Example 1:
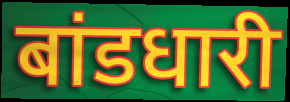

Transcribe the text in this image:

बांडधारी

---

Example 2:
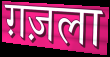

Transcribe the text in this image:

ग़ज़ला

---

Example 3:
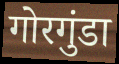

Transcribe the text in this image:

गोरगुंडा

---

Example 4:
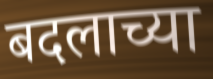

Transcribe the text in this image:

बदलाच्या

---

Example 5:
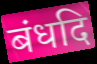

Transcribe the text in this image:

बंधदि